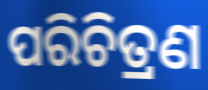
ପରିଚିତ୍ରଣ